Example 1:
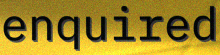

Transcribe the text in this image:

enquired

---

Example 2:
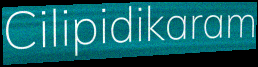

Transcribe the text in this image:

Cilipidikaram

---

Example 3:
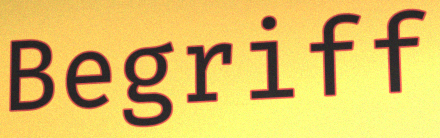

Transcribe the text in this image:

Begriff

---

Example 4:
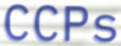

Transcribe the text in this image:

CCPs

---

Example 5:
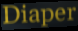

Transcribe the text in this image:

Diaper